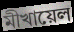
মীখায়েল